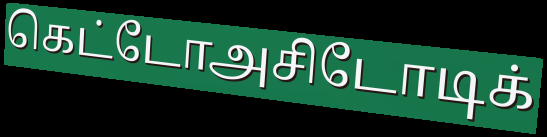
கெட்டோஅசிடோடிக்